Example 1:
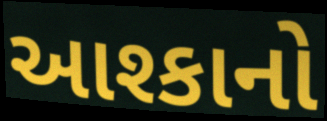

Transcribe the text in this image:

આશ્કાનો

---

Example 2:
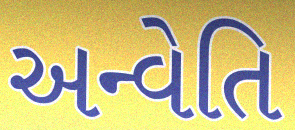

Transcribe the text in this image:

અન્વેતિ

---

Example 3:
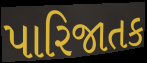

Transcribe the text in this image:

પારિજાતક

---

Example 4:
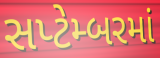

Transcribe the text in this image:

સપ્ટેમ્બરમાં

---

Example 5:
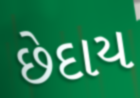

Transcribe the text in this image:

છેદાય